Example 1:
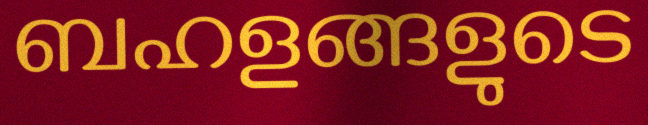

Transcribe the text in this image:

ബഹളങ്ങളുടെ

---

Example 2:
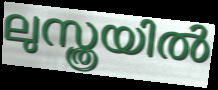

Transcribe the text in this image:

ലുസ്ത്രയിൽ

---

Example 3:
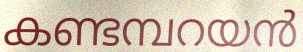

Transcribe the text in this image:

കണ്ടമ്പറയൻ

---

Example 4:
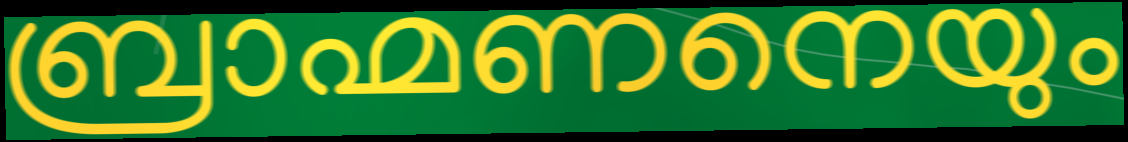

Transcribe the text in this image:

ബ്രാഹ്മണനെയും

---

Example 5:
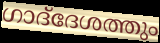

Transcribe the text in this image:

ഗാദ്‌ദേശത്തും